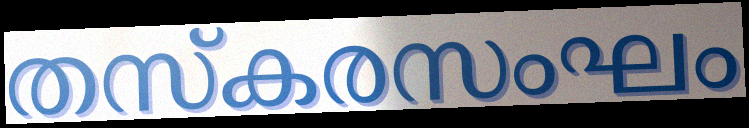
തസ്കരസംഘം